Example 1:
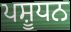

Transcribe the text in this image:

ਪਸ਼ੂਧਨ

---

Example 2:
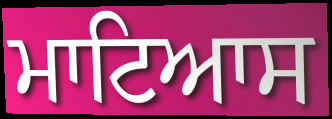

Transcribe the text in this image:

ਮਾਟਿਆਸ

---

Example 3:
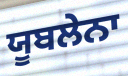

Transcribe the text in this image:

ਯੂਬਲੇਨਾ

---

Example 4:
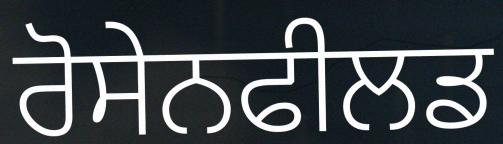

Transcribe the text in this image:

ਰੋਸੇਨਫੀਲਡ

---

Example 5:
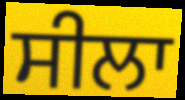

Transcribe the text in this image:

ਸੀਲਾ